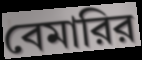
বেমারির